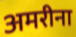
अमरीना